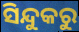
ସିନ୍ଦୁକରୁ